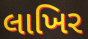
લાખિર